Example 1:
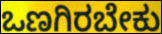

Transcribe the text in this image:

ಒಣಗಿರಬೇಕು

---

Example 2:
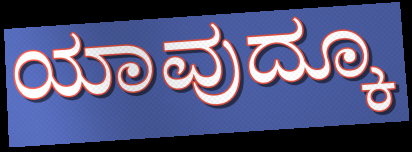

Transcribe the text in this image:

ಯಾವುದ್ಕೂ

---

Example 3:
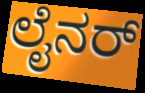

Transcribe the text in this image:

ಲೈನರ್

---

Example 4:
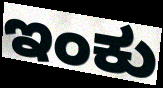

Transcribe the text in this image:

ಇಂಕು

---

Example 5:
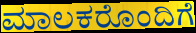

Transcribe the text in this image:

ಮಾಲಕರೊಂದಿಗೆ